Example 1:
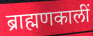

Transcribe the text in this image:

ब्राह्मणकालीं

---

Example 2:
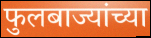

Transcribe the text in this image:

फुलबाज्यांच्या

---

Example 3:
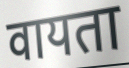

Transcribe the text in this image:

वायता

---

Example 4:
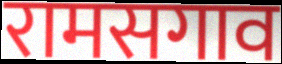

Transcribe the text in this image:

रामसगाव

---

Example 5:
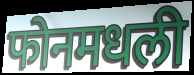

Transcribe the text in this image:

फोनमधली